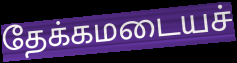
தேக்கமடையச்